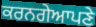
ਕਰਨਗੇਆਪਣੇ